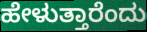
ಹೇಳುತ್ತಾರೆಂದು